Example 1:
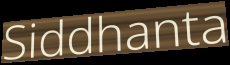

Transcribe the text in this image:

Siddhanta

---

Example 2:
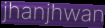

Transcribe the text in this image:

jhanjhwan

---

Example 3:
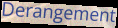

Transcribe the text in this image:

Derangement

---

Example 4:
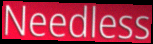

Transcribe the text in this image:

Needless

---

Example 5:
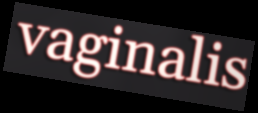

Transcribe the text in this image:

vaginalis